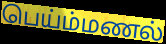
பெய்ம்மணல்